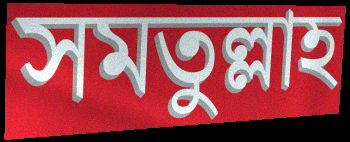
সমতুল্লাহ